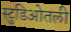
स्टुडिओतली